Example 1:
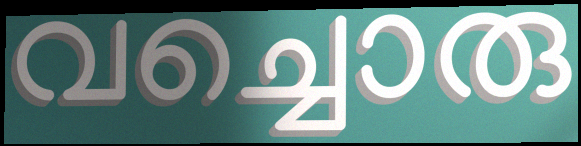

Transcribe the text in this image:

വച്ചൊരു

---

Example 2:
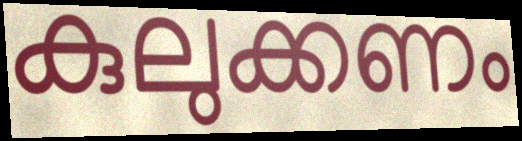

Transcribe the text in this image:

കുലുക്കണം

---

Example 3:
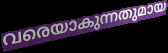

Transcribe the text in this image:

വരെയാകുന്നതുമായ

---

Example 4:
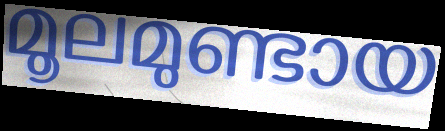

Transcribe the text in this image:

മൂലമുണ്ടായ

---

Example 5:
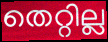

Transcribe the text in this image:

തെറ്റില്ല